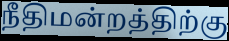
நீதிமன்றத்திற்கு